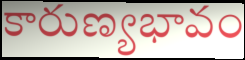
కారుణ్యభావం